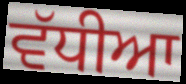
ਵੱਧੀਆ